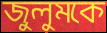
জুলুমকে